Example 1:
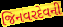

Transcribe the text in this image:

જિનવરદેવની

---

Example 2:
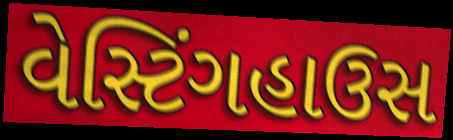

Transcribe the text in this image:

વેસ્ટિંગહાઉસ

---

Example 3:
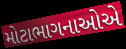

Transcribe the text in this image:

મોટાભાગનાઓએ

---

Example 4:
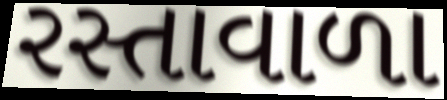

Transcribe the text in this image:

રસ્તાવાળા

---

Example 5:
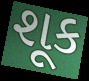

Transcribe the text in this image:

શૂક